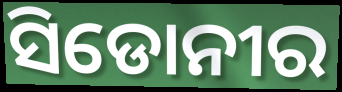
ସିଡୋନୀର